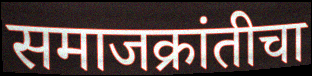
समाजक्रांतीचा